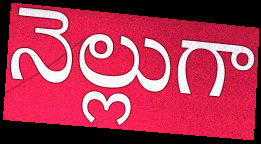
నెల్లుగా